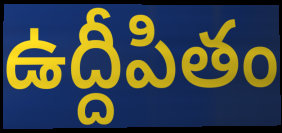
ఉద్దీపితం